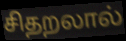
சிதறலால்